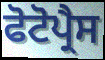
ਫੋਟੋਪ੍ਰੈਸ